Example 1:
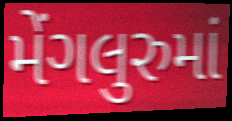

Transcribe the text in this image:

મેંગલુરુમાં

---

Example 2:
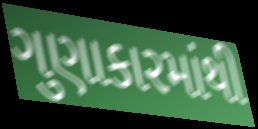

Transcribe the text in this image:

ગુણાકારમાંથી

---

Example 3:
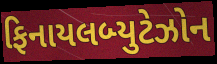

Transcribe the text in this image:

ફિનાયલબ્યુટેઝોન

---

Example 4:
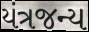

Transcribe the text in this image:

યંત્રજન્ય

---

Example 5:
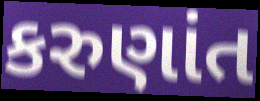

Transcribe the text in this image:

કરુણાંત